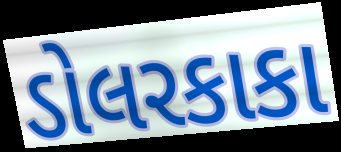
ડોલરકાકા